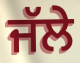
ਜੱਲੇ